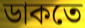
ডাকতে